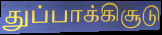
துப்பாக்கிசூடு